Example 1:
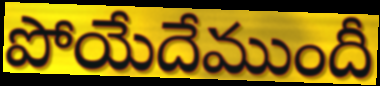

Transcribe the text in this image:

పోయేదేముందీ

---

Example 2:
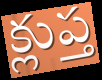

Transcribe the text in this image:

క్లుప్త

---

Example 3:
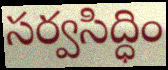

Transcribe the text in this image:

సర్వసిద్ధిం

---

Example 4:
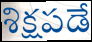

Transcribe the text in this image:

శిక్షపడే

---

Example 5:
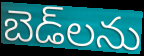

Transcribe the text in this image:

బెడ్‌లను